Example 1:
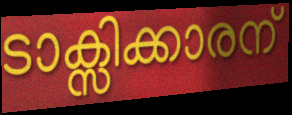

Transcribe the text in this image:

ടാക്സിക്കാരന്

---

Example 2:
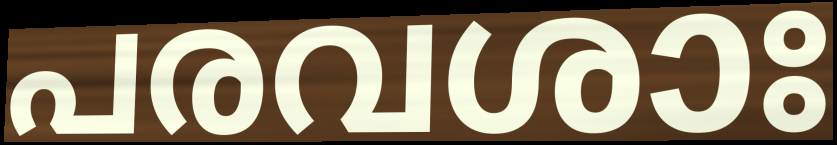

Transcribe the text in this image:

പരവശാഃ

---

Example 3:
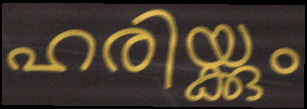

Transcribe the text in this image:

ഹരിയ്ക്കും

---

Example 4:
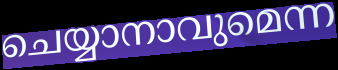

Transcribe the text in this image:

ചെയ്യാനാവുമെന്ന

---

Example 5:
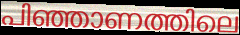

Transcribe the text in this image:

പിഞ്ഞാണത്തിലെ